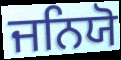
ਜਨਿਯੋ